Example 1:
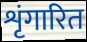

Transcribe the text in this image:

शृंगारित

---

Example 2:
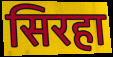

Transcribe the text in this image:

सिरहा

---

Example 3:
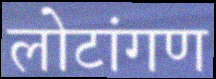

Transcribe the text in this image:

लोटांगण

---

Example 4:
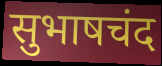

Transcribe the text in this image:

सुभाषचंद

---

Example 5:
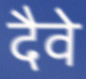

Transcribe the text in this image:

दैवे